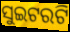
ସୁଇଟରଟି